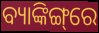
ବ୍ୟାଙ୍କିଙ୍ଗ୍‌ରେ